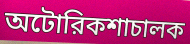
অটোরিকশাচালক